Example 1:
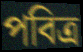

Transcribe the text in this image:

পবিত্র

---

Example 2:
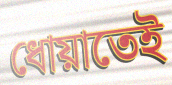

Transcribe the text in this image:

ধোয়াতেই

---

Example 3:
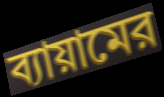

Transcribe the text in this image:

ব্যায়ামের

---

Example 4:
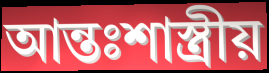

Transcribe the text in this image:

আন্তঃশাস্ত্রীয়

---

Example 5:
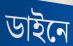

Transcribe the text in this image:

ডাইনে